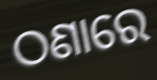
ଠଣାରେ